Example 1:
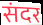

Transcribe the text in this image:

संदर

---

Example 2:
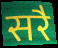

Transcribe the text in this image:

सरै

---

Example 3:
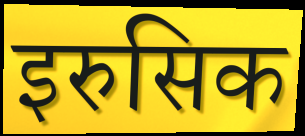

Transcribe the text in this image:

इरुसिक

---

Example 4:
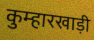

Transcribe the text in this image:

कुम्हारखाड़ी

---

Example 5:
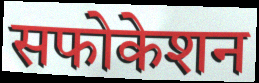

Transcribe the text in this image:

सफोकेशन